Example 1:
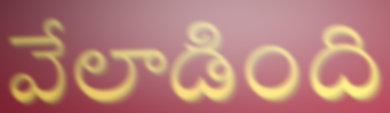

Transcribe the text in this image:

వేలాడింది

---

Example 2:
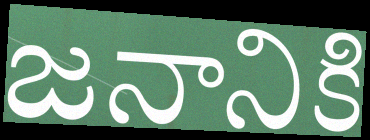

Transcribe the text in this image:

జనానికి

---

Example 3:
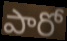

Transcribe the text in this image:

పారో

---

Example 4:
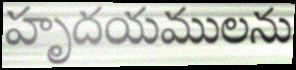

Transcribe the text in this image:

హృదయములను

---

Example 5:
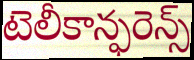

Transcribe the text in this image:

టెలీకాన్ఫరెన్స్